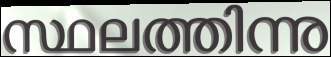
സ്ഥലത്തിന്നു